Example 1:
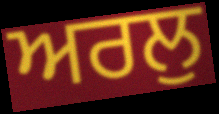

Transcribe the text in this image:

ਅਰਲੁ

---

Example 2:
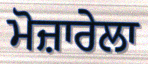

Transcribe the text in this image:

ਮੋਜ਼ਾਰੇਲਾ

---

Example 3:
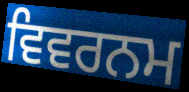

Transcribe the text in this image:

ਵਿਵਰਨਮ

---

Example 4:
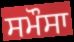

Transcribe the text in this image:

ਸਮੌਸਾ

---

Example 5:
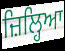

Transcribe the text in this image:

ਜ਼ਿਲ੍ਹਿਆ